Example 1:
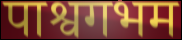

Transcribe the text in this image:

पाश्वगभम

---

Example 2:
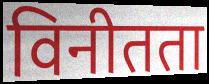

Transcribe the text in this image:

विनीतता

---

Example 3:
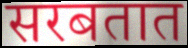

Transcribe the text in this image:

सरबतात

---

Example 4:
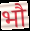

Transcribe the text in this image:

भौ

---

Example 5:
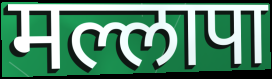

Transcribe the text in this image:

मल्लापा